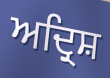
ਅਦ੍ਰਿਸ਼